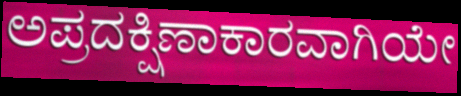
ಅಪ್ರದಕ್ಷಿಣಾಕಾರವಾಗಿಯೇ